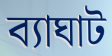
ব্যাঘাট